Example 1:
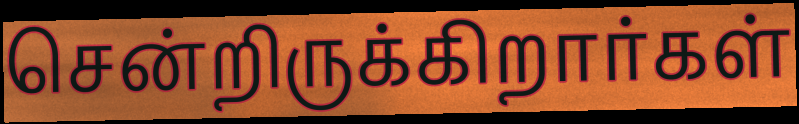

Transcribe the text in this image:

சென்றிருக்கிறார்கள்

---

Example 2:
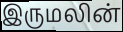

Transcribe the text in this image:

இருமலின்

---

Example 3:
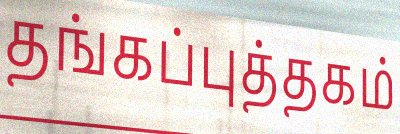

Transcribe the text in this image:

தங்கப்புத்தகம்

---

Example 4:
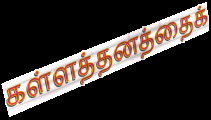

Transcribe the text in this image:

கள்ளத்தனத்தைக்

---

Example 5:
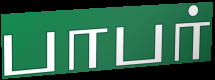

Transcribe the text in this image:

பாபர்